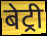
बेट्री